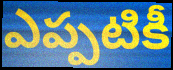
ఎప్పటికీ